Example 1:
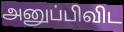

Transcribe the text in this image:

அனுப்பிவிட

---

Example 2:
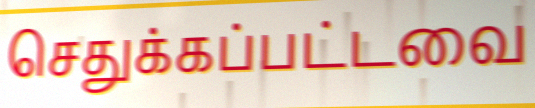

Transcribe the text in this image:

செதுக்கப்பட்டவை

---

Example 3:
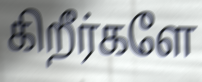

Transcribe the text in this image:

கிறீர்களே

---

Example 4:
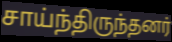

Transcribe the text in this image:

சாய்ந்திருந்தனர்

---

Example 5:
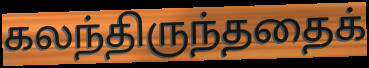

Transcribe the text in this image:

கலந்திருந்ததைக்